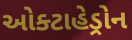
ઓક્ટાહેડ્રોન